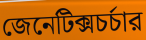
জেনেটিক্সচর্চার